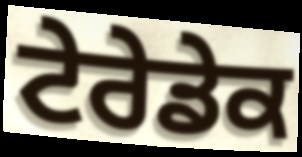
ਟੇਰੇਡੇਕ